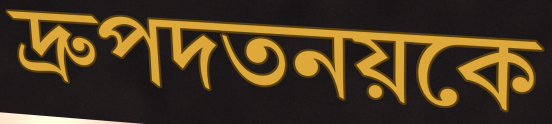
দ্রুপদতনয়কে